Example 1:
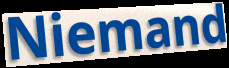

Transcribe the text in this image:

Niemand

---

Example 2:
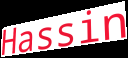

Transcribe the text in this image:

Hassin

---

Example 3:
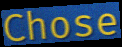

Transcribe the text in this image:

Chose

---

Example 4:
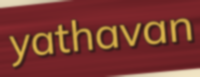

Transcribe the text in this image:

yathavan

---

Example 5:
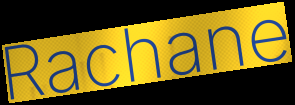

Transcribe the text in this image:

Rachane